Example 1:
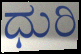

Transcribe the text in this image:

ಧುರಿ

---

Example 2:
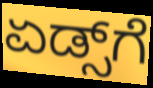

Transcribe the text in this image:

ಏಡ್ಸ್‌ಗೆ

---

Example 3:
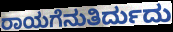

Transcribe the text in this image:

ರಾಯಗೆನುತಿರ್ದುದು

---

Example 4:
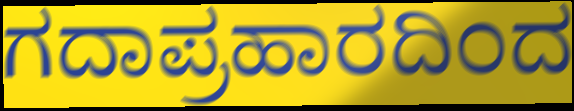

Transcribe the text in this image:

ಗದಾಪ್ರಹಾರದಿಂದ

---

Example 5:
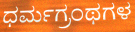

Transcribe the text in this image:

ಧರ್ಮಗ್ರಂಥಗಳ